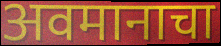
अवमानाचा